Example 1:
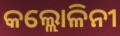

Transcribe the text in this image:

କଲ୍ଲୋଳିନୀ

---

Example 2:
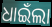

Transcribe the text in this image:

ଧାଇଁଲା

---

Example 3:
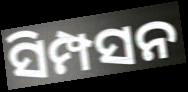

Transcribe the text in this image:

ସିମ୍ପସନ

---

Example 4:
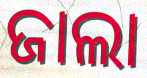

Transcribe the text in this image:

ଜାଲା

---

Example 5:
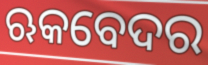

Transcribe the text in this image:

ଋକବେଦର